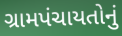
ગ્રામપંચાયતોનું